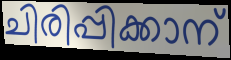
ചിരിപ്പിക്കാന്